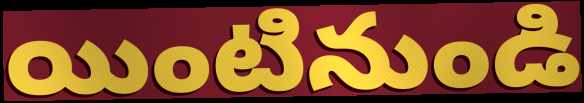
యింటినుండి